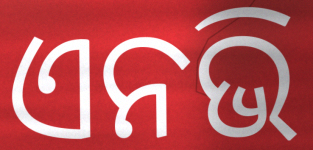
ଏନଭି